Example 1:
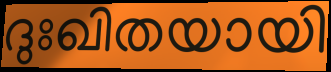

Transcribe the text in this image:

ദുഃഖിതയായി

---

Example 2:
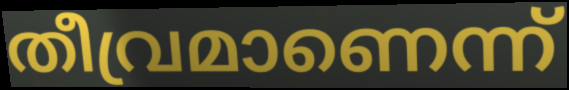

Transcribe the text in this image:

തീവ്രമാണെന്ന്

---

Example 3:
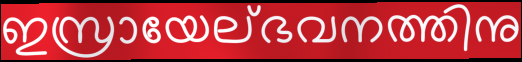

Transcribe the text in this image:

ഇസ്രായേല്ഭവനത്തിനു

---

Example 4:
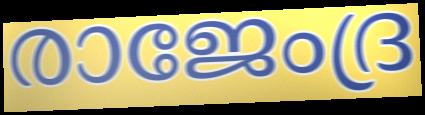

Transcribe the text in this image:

രാജേംദ്ര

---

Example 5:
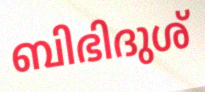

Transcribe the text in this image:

ബിഭിദുശ്